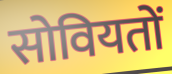
सोवियतों